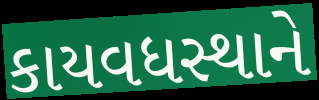
કાયવધસ્થાને